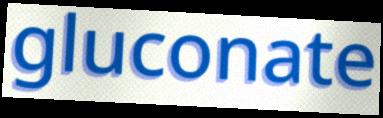
gluconate